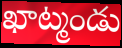
ఖాట్మండు